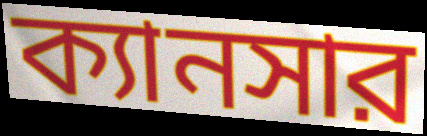
ক্যানসার